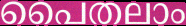
പൈതലാം